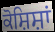
ਕੋਸ਼ਿਸ਼ਾਂ